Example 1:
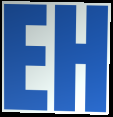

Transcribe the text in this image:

EH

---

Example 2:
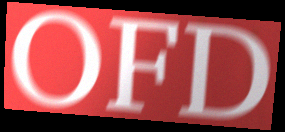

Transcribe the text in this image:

OFD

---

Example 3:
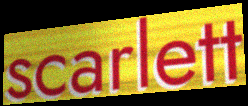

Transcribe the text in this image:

scarlett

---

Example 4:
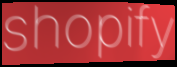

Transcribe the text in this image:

shopify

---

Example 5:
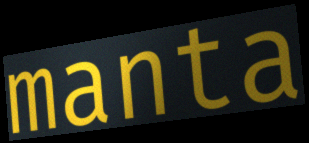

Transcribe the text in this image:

manta